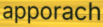
apporach